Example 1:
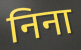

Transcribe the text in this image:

निना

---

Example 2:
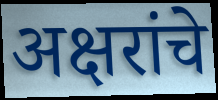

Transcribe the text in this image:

अक्षरांचे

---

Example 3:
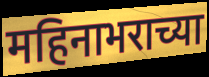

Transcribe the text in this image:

महिनाभराच्या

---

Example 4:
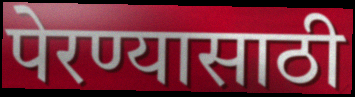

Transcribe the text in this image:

पेरण्यासाठी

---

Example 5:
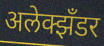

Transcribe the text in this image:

अलेक्झँडर